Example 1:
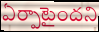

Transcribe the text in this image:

ఏర్పాటైందని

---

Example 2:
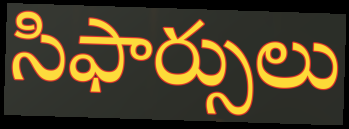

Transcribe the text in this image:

సిఫార్సులు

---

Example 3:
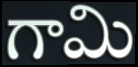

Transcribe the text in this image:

గామి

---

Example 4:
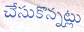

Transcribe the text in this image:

చేసుకొన్నట్లు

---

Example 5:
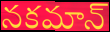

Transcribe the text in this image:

నకమాన్